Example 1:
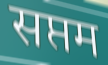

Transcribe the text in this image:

सप्तम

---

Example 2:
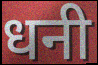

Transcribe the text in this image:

धनी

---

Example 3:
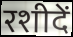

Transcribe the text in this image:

रशीदें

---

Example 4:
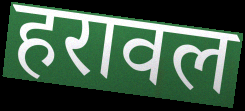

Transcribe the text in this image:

हरावल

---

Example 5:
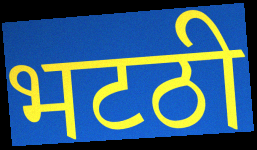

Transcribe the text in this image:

भटठी